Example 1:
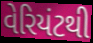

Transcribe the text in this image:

વેરિયંટથી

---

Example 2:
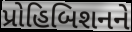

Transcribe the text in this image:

પ્રોહિબિશનને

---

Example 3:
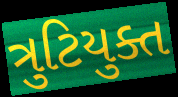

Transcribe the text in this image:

ત્રુટિયુક્ત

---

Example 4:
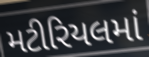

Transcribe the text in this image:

મટીરિયલમાં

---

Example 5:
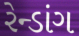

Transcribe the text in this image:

રેન્ડાંગ